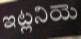
ఇట్లనియె